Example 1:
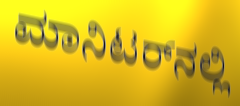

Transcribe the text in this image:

ಮಾನಿಟರ್‌ನಲ್ಲಿ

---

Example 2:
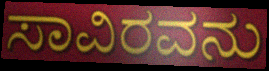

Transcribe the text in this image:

ಸಾವಿರವನು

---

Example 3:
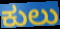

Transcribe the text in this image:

ಕುಲು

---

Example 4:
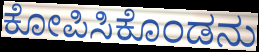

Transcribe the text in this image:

ಕೋಪಿಸಿಕೊಂಡನು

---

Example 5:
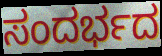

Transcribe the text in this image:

ಸಂದರ್ಭದ